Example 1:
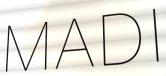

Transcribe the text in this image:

MADI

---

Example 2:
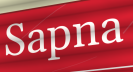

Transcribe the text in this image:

Sapna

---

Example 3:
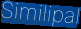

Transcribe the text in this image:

Similipal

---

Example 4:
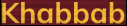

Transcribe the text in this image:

Khabbab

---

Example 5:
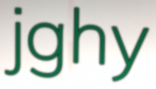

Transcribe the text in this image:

jghy